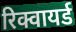
रिक्वायर्ड